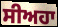
ਸੀਅਹਾ